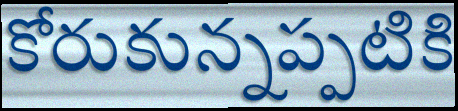
కోరుకున్నప్పటికి